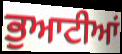
ਭੁਆਟੀਆਂ